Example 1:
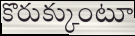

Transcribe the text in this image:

కొరుక్కుంటూ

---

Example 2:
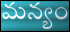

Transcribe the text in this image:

మన్యం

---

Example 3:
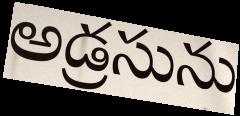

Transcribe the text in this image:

అడ్రసును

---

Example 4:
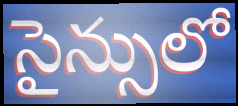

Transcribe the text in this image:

సైన్సులో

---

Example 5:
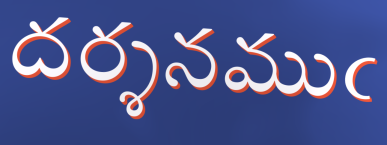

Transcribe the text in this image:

దర్శనముఁ